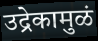
उद्रेकामुळं